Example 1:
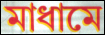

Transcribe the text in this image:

মাধামে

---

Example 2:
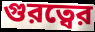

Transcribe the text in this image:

গুরত্বের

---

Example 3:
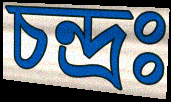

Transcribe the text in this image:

চন্দ্রঃ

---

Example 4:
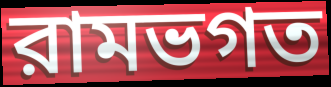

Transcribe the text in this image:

রামভগত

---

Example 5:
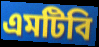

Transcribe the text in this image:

এমটিবি